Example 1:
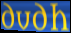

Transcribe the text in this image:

dudh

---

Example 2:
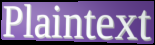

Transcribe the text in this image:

Plaintext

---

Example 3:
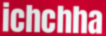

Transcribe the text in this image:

ichchha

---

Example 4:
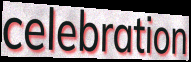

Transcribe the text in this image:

celebration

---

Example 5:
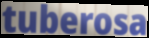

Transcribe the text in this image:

tuberosa